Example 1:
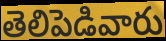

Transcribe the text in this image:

తెలిపెడివారు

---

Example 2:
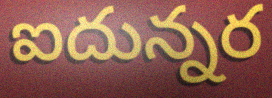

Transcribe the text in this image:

ఐదున్నర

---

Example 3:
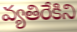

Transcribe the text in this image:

వ్యతిరేకిని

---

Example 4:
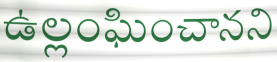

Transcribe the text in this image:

ఉల్లంఘించానని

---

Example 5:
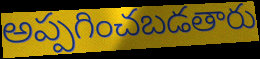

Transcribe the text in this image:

అప్పగించబడతారు